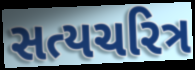
સત્યચરિત્ર